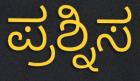
ಪ್ರಶ್ನಿಸ